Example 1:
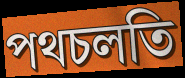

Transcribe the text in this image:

পথচলতি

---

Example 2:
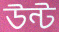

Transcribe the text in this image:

উন্ট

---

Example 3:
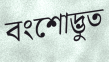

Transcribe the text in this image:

বংশোদ্ভুত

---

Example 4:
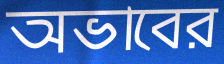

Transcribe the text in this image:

অভাবের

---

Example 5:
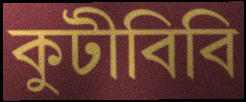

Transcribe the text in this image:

কুটীবিবি